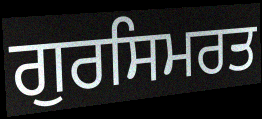
ਗੁਰਸਿਮਰਤ